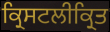
ਕ੍ਰਿਸਟਲੀਕ੍ਰਿਤ